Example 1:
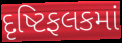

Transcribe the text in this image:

દૃષ્ટિફલકમાં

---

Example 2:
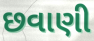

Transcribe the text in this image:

છવાણી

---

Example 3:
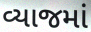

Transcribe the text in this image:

વ્યાજમાં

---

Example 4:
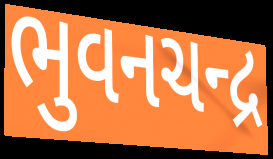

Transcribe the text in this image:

ભુવનચન્દ્ર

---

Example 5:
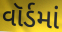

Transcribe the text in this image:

વૉર્ડમાં